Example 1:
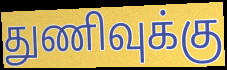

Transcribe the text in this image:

துணிவுக்கு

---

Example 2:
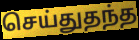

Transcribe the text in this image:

செய்துதந்த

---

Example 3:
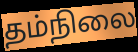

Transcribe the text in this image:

தம்நிலை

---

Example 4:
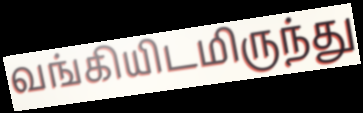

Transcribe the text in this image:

வங்கியிடமிருந்து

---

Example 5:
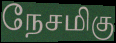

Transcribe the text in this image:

நேசமிகு